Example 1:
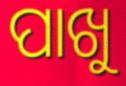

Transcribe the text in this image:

ପାଖୁ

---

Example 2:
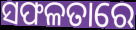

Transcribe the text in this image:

ସଫଳତାରେ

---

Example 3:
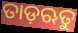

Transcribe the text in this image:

ତାଡ଼ଋତୁ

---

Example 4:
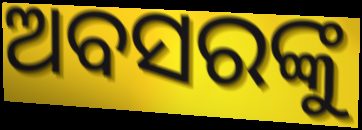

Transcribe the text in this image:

ଅବସରଙ୍କୁ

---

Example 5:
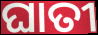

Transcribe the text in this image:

ଘାତୀ